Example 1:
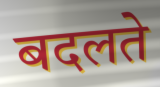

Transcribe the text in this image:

बदलते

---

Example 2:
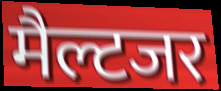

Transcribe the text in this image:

मैल्टजर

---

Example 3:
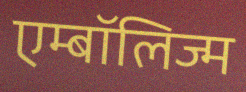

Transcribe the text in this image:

एम्बॉलिज्म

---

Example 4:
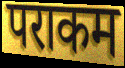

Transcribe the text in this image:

पराकम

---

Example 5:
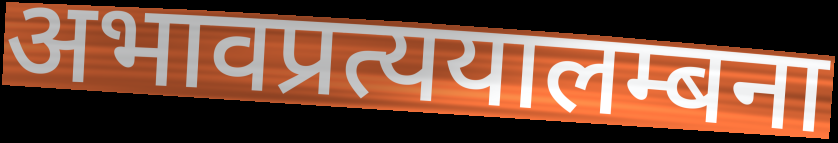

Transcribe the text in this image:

अभावप्रत्ययालम्बना